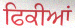
ਫਿਕੀਆਂ